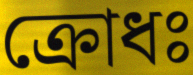
ক্রোধঃ